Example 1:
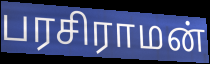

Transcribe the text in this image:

பரசிராமன்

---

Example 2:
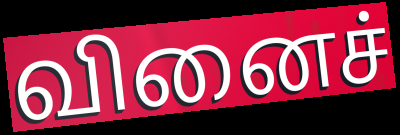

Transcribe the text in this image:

வினைச்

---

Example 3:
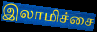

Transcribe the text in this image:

இலாமிச்சை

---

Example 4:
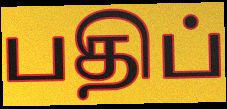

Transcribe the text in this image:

பதிப்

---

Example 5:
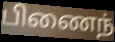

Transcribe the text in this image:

பிணைந்